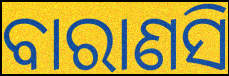
ବାରାଣସି